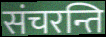
संचरन्ति